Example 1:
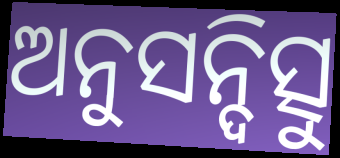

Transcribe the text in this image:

ଅନୁସନ୍ଦିତ୍ସୁ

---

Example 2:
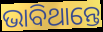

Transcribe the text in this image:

ଭାବିଥାନ୍ତେ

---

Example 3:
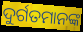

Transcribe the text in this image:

ଦୁର୍ଗତମାନଙ୍କ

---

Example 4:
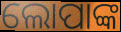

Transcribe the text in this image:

ଲୋପାଙ୍କ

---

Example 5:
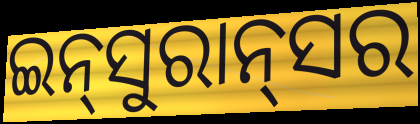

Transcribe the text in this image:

ଇନ୍‍ସୁରାନ୍‍ସର